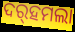
ଦର୍‌ହମଲା